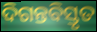
ଦିଗନ୍ତବିସ୍ତୃତ